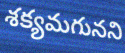
శక్యమగునని